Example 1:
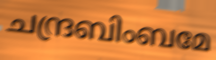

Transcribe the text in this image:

ചന്ദ്രബിംബമേ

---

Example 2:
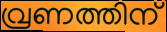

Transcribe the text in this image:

വ്രണത്തിന്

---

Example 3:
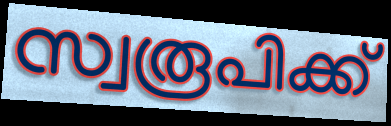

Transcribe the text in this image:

സ്വരൂപിക്ക്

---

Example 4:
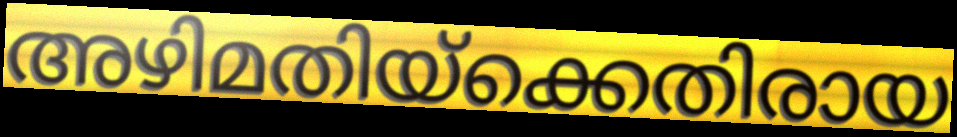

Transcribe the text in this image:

അഴിമതിയ്ക്കെതിരായ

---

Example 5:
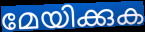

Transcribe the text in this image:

മേയിക്കുക